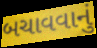
બચાવવાનું